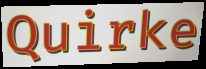
Quirke